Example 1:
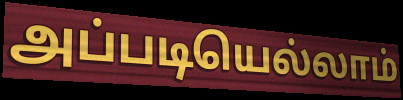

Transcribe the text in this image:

அப்படியெல்லாம்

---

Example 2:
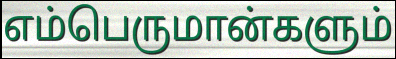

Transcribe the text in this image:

எம்பெருமான்களும்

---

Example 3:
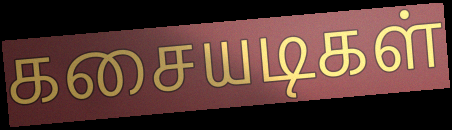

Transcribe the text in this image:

கசையடிகள்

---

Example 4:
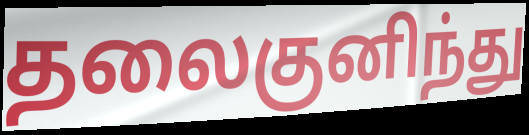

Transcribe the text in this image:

தலைகுனிந்து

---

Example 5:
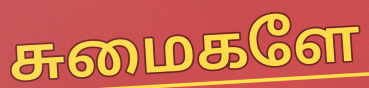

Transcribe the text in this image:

சுமைகளே